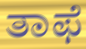
ತಾಫೆ